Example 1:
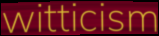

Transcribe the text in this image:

witticism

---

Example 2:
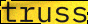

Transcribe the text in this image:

truss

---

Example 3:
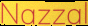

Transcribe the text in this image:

Nazzal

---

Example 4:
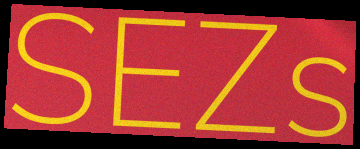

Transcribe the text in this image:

SEZs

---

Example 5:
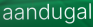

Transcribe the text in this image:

aandugal